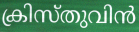
ക്രിസ്തുവിൻ